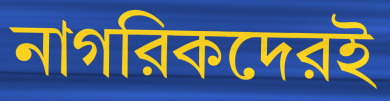
নাগরিকদেরই